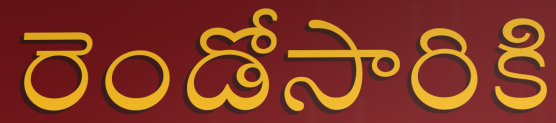
రెండోసారికి